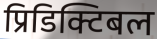
प्रिडिक्टिबल